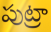
పుట్రా